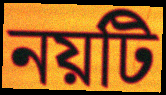
নয়টি